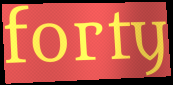
forty